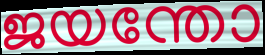
ജയന്തോ